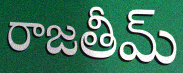
రాజతీమ్